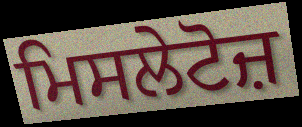
ਮਿਸਲੇਟੋਜ਼